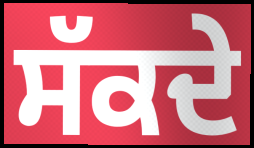
ਸੱਕਦੇ